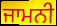
ਜਾਮਨੀ